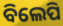
ବିଲେପି